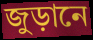
জুড়ানে